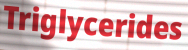
Triglycerides